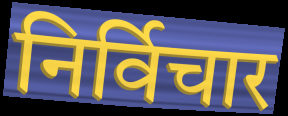
निर्विचार